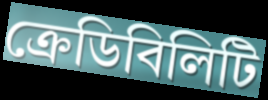
ক্রেডিবিলিটি